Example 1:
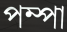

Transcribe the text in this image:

পম্পা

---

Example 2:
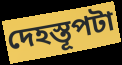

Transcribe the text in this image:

দেহস্তূপটা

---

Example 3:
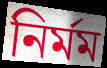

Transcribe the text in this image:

নির্মম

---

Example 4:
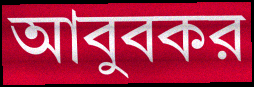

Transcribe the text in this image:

আবুবকর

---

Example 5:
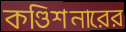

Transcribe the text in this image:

কণ্ডিশনারের